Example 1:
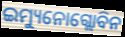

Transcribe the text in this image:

ଇମ୍ୟୁନୋଗ୍ଲୋବିନ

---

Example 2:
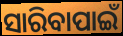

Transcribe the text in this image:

ସାରିବାପାଇଁ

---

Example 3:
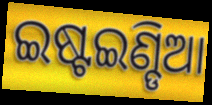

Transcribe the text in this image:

ଇଷ୍ଟଇଣ୍ଡିଆ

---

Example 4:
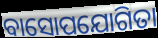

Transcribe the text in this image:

ବାସୋପଯୋଗିତା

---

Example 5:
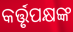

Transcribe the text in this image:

କର୍ତ୍ତୃପକ୍ଷଙ୍କ